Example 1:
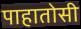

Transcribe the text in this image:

पाहातोसी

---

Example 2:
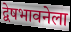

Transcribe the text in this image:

द्वेषभावनेला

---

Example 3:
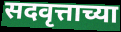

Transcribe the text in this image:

सदवृत्ताच्या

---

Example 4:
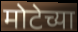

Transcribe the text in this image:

मोटेच्या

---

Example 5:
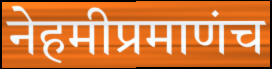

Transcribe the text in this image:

नेहमीप्रमाणंच